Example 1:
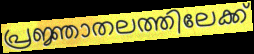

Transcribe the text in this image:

പ്രജ്ഞാതലത്തിലേക്ക്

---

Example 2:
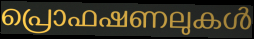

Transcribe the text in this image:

പ്രൊഫഷണലുകൾ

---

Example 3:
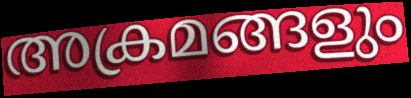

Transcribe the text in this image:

അക്രമങ്ങളും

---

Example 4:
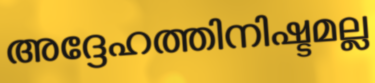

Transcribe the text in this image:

അദ്ദേഹത്തിനിഷ്ടമല്ല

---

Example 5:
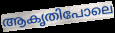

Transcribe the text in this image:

ആകൃതിപോലെ